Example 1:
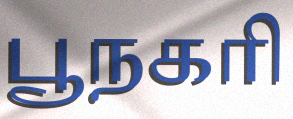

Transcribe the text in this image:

பூநகரி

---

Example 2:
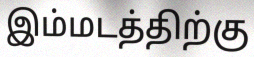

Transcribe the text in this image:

இம்மடத்திற்கு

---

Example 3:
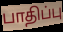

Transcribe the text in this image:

பாதிப்பு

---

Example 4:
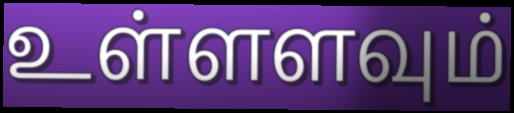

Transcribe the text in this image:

உள்ளளவும்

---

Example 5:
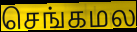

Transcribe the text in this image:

செங்கமல